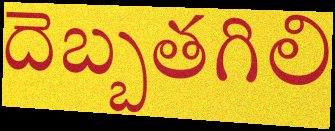
దెబ్బతగిలి